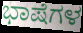
ಭಾಷೆಗಳ